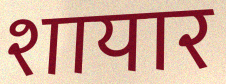
शायार